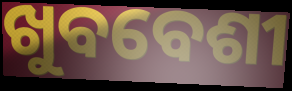
ଖୁବବେଶୀ